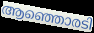
ആഞ്ഞൊരടി